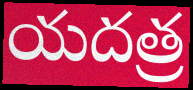
యదత్ర